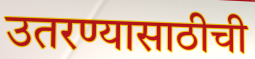
उतरण्यासाठीची